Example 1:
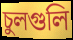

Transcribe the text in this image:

চুলগুলি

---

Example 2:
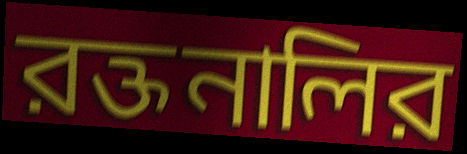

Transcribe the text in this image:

রক্তনালির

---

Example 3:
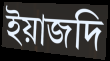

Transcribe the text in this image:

ইয়াজদি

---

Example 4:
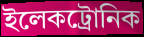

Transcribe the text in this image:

ইলেকট্রোনিক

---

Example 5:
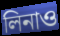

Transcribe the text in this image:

লিনাও